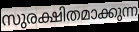
സുരക്ഷിതമാക്കുന്ന